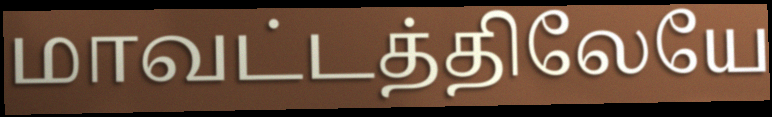
மாவட்டத்திலேயே